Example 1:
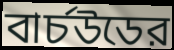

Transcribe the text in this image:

বার্চউডের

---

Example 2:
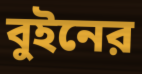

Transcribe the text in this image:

বুইনের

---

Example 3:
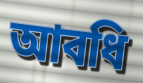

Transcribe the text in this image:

আবধি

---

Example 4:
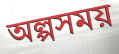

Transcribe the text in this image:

অল্পসময়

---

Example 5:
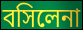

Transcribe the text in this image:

বসিলেনা